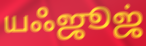
யஃஜூஜ்